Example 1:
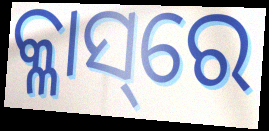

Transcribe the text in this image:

କ୍ଳାସ୍‌ରେ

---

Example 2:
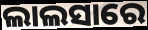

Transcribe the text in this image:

ଲାଲସାରେ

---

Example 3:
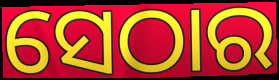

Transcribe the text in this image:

ସେଠାର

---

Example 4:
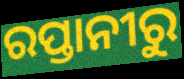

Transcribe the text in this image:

ରପ୍ତାନୀରୁ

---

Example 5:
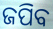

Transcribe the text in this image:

ଜପିବ